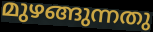
മുഴങ്ങുന്നതു